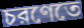
চরণেতে